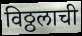
विठ्ठलाची